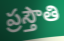
ప్రస్తౌతి